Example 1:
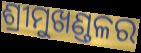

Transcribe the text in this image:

ଶ୍ରୀମୁଖଣ୍ଡଳର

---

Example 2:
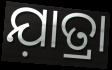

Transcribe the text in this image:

ଯ଼ାତ୍ରା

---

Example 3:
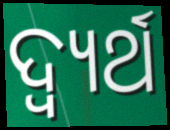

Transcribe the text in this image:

ଦ୍ୱ୍ୟର୍ଥ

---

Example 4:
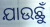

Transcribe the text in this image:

ଯାଉଛୁଁ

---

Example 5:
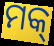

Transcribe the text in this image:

ମକ୍